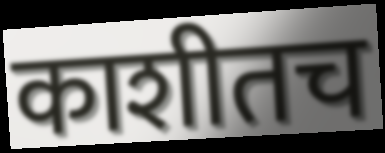
काशीतच